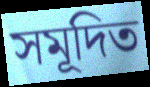
সমূদিত